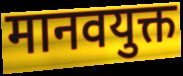
मानवयुक्त